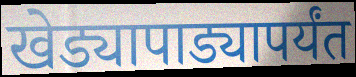
खेड्यापाड्यापर्यंत